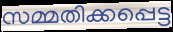
സമ്മതിക്കപ്പെട്ട